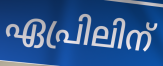
ഏപ്രിലിന്